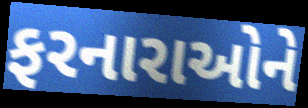
ફરનારાઓને